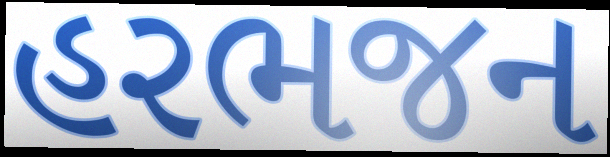
હરભજન